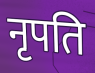
नृपति